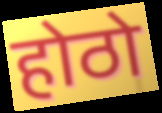
होठो